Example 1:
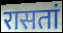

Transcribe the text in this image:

रासतां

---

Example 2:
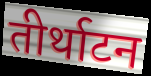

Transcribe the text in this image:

तीर्थाटन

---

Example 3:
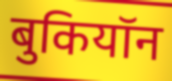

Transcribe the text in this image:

बुकियॉन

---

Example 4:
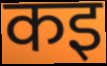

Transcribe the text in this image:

कइ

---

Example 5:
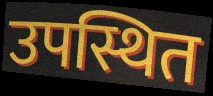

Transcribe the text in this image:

उपस्थित